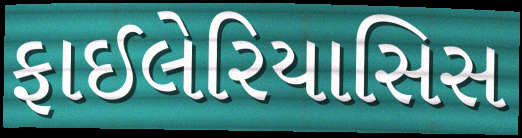
ફાઈલેરિયાસિસ